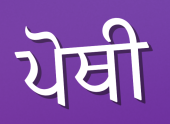
ਪੋਥੀ